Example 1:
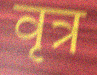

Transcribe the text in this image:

वृत्र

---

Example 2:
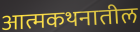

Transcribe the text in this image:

आत्मकथनातील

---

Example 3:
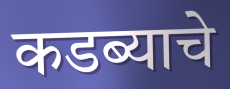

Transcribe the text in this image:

कडब्याचे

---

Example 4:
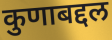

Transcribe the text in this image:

कुणाबद्दल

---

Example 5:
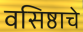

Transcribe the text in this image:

वसिष्ठाचे